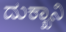
ದುಕ್ಖಾನಿ